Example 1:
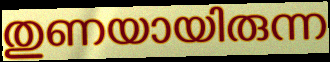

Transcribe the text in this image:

തുണയായിരുന്ന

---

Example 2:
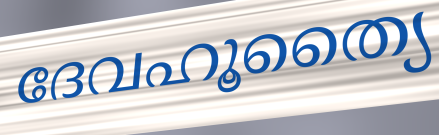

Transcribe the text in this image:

ദേവഹൂത്യൈ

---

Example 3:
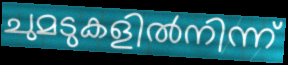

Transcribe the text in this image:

ചുമടുകളിൽനിന്ന്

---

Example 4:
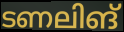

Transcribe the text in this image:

ടണലിങ്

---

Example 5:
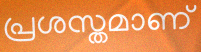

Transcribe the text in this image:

പ്രശസ്തമാണ്